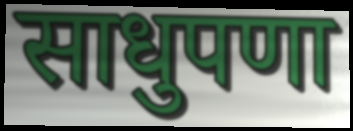
साधुपणा